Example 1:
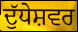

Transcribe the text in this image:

ਦੁੱਧੇਸ਼ਵਰ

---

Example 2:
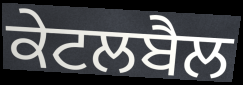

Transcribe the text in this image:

ਕੇਟਲਬੈਲ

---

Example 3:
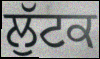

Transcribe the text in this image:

ਲੁੱਟਕ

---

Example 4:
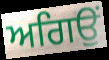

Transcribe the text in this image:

ਅਗਿਉਂ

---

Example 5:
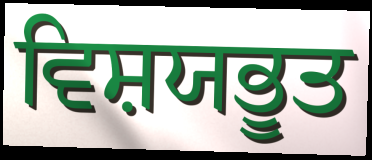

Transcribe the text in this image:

ਵਿਸ਼ਯਭੂਤ